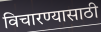
विचारण्यासाठी